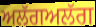
ਅਲੱਗਅਲੱਗ